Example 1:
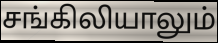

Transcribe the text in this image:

சங்கிலியாலும்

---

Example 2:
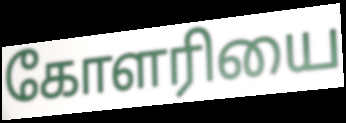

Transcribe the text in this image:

கோளரியை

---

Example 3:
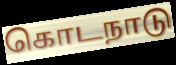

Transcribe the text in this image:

கொடநாடு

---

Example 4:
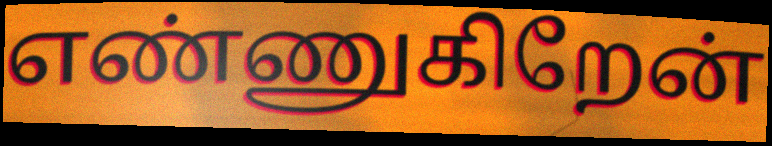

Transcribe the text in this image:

எண்ணுகிறேன்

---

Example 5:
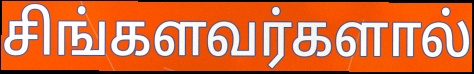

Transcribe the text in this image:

சிங்களவர்களால்